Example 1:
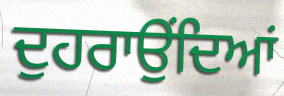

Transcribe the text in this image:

ਦੁਹਰਾਉਂਦਿਆਂ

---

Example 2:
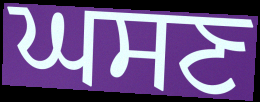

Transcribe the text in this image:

ਘਸਣ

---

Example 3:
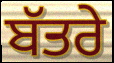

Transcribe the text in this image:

ਬੱਤਰੇ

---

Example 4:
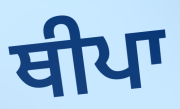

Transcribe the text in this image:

ਥੀਪਾ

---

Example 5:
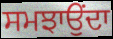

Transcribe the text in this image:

ਸਮਝਾਉਂਦਾ